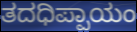
ತದಧಿಪ್ಪಾಯಂ